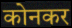
कोनकर